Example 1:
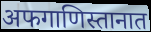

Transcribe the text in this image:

अफगाणिस्तानात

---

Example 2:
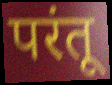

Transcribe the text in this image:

परंतू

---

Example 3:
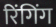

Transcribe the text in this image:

रिंगिंग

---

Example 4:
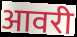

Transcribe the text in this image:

आवरी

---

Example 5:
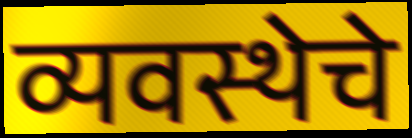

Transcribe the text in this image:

व्यवस्थेचे